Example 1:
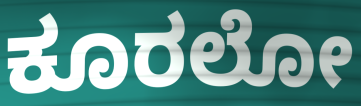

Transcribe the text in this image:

ಕೂರಲೋ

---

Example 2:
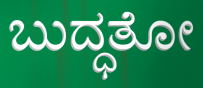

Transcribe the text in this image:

ಬುದ್ಧತೋ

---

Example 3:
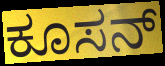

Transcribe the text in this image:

ಕೂಸನ್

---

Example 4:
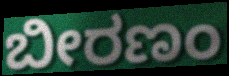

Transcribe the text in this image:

ಬೀರಣಂ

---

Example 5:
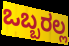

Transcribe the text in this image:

ಒಬ್ಬರಲ್ಲ